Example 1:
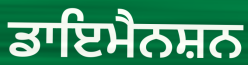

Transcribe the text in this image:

ਡਾਇਮੈਨਸ਼ਨ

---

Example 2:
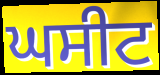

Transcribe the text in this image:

ਘਸੀਟ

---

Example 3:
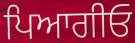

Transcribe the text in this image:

ਪਿਆਗੀਓ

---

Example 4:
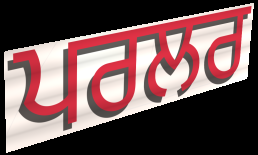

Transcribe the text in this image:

ਪਰਲਰ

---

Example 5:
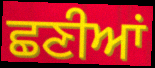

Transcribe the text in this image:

ਛਣੀਆਂ